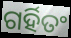
ଗର୍ହିତଂ